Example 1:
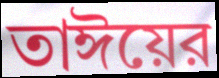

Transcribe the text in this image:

তাঈয়ের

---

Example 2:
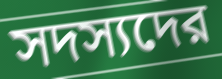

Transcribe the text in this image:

সদস্যদের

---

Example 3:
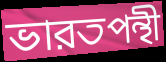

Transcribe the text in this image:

ভারতপন্থী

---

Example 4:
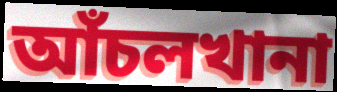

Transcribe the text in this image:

আঁচলখানা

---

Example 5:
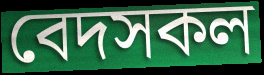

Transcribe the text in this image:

বেদসকল